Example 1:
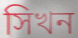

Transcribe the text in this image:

সিখন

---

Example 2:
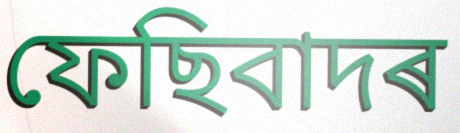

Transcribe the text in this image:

ফেছিবাদৰ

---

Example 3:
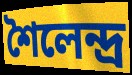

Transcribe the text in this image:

শৈলেন্দ্ৰ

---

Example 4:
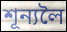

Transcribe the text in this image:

শূন্যলৈ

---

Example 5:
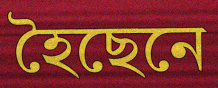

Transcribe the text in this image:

হৈছেনে